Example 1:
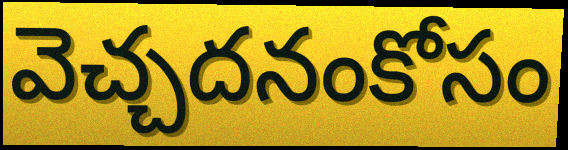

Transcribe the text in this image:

వెచ్చదనంకోసం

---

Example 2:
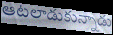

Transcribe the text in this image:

ఆటలాడుకున్నాడు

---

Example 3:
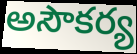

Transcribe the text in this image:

అసౌకర్య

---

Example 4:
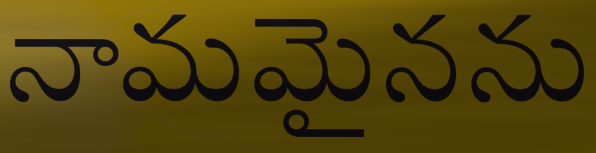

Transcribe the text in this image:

నామమైనను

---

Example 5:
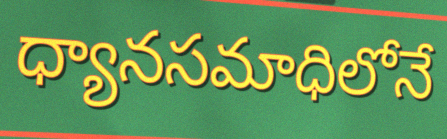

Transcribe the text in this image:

ధ్యానసమాధిలోనే